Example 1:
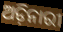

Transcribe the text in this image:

ଅଡ଼ିନାରୀ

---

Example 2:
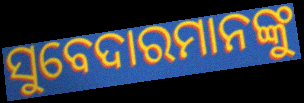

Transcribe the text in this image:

ସୁବେଦାରମାନଙ୍କୁ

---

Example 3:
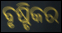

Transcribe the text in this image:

ବୃଷ୍ଚିକର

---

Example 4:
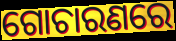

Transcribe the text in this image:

ଗୋଚାରଣରେ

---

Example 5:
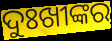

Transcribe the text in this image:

ଦୁଃଖୀଙ୍କର